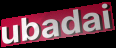
ubadai